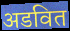
अडवित